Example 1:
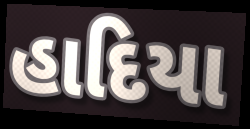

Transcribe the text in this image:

હાદિયા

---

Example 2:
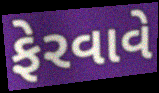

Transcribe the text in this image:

ફેરવાવે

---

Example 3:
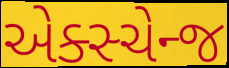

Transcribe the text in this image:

એક્સ્ચેન્જ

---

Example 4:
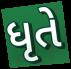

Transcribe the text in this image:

ધૃતે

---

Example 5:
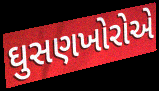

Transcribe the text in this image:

ઘુસણખોરોએ